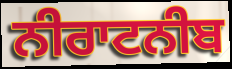
ਨੀਰਾਟਨੀਬ